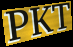
PKT